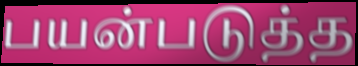
பயன்படுத்த